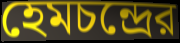
হেমচন্দ্রের